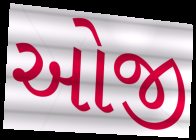
ઓજી